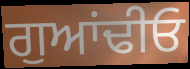
ਗੁਆਂਢੀਓ